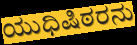
ಯುಧಿಷಿಠರನು